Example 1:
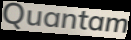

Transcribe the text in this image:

Quantam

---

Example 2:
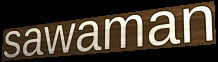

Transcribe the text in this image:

sawaman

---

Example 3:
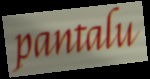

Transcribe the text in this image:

pantalu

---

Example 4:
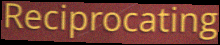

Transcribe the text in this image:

Reciprocating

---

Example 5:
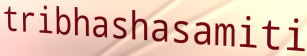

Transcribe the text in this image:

tribhashasamiti